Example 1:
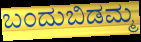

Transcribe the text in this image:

ಬಂದುಬಿಡಮ್ಮ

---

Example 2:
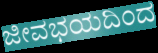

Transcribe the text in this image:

ಜೀವಭಯದಿಂದ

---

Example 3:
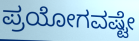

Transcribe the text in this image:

ಪ್ರಯೋಗವಷ್ಟೇ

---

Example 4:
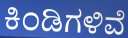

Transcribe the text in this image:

ಕಿಂಡಿಗಳಿವೆ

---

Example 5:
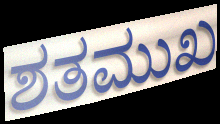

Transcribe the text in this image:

ಶತಮುಖ